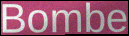
Bombe